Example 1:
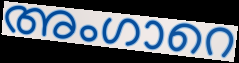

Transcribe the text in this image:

അംഗാറെ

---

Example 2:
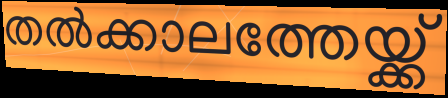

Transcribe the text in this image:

തൽക്കാലത്തേയ്ക്ക്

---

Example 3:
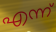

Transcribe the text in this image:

എന്ന്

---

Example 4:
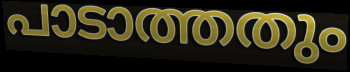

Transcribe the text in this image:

പാടാത്തതും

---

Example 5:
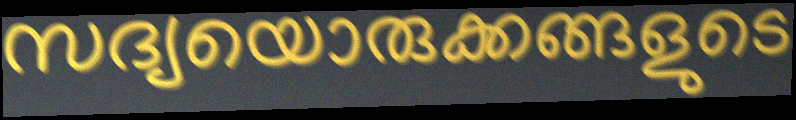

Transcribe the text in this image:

സദ്യയൊരുക്കങ്ങളുടെ